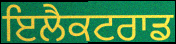
ਇਲੈਕਟਰਾਡ